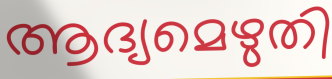
ആദ്യമെഴുതി